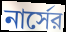
নার্সের